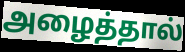
அழைத்தால்